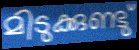
മിടുക്കുണ്ടു്